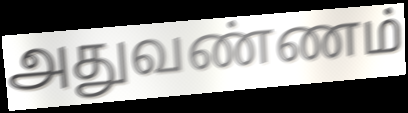
அதுவண்ணம்